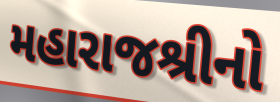
મહારાજશ્રીનો